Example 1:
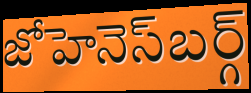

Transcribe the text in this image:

జోహెనెస్‍బర్గ్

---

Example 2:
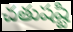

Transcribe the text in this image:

చతుషష్టి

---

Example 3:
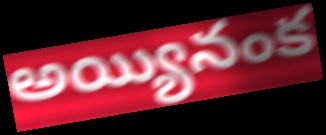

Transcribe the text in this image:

అయ్యినంక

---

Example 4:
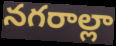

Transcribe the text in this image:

నగరాల్లా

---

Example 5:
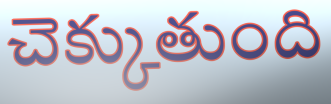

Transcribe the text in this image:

చెక్కుతుంది